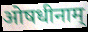
ओषधीनाम्